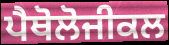
ਪੈਥੋਲੋਜੀਕਲ